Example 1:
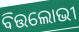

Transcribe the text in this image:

ବିତ୍ତଲୋଭୀ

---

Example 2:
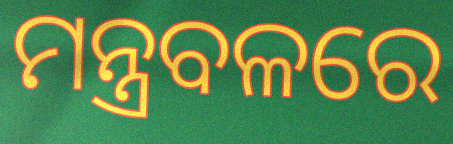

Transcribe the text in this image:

ମନ୍ତ୍ରବଳରେ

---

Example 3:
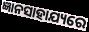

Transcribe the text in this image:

ଜ୍ଞାନସାହାଯ୍ୟରେ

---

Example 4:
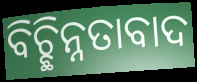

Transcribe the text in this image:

ବିଚ୍ଛିନ୍ନତାବାଦ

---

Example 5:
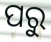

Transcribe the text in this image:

ପରୁ